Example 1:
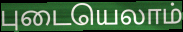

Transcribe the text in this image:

புடையெலாம்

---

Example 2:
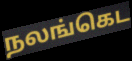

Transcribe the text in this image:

நலங்கெட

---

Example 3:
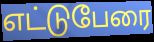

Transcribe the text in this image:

எட்டுபேரை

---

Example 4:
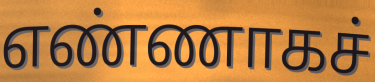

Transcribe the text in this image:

எண்ணாகச்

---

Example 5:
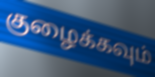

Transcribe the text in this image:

குழைக்கவும்